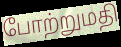
போற்றுமதி